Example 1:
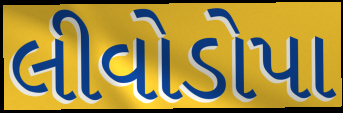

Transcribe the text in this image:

લીવોડોપા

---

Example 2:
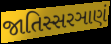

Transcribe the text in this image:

જાતિસ્સરઞાણં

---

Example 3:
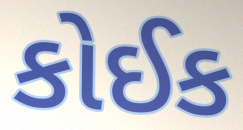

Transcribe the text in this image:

કોઈક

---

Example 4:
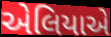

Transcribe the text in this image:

એલિયાએ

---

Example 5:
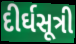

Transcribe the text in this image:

દીર્ઘસૂત્રી